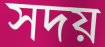
সদয়